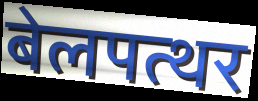
बेलपत्थर